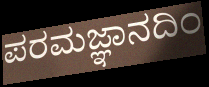
ಪರಮಜ್ಞಾನದಿಂ